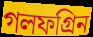
গলফগ্রিন